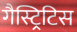
गैस्ट्रिटिस